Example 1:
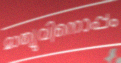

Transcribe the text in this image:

മാത്യുവിനൊപ്പം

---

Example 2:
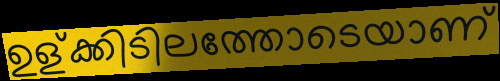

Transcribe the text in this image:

ഉള്ക്കിടിലത്തോടെയാണ്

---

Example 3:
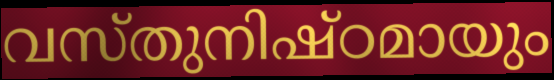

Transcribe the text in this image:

വസ്തുനിഷ്ഠമായും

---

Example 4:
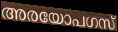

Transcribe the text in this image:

അരയോപഗസ്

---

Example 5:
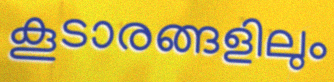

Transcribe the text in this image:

കൂടാരങ്ങളിലും